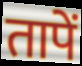
तापें